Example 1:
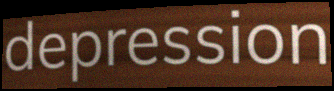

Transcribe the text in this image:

depression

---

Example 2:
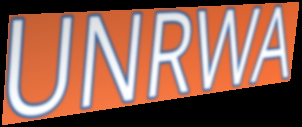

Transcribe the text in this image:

UNRWA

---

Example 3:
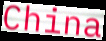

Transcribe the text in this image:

China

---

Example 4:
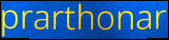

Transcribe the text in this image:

prarthonar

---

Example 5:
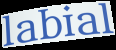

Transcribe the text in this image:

labial